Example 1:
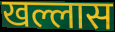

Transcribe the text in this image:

खल्लास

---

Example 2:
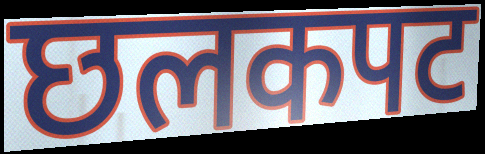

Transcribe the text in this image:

छलकपट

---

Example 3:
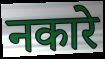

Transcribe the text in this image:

नकारे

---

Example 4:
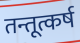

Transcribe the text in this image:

तन्तूत्कर्ष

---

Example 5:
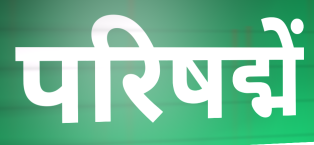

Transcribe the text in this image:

परिषद्में